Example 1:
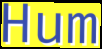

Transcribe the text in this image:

Hum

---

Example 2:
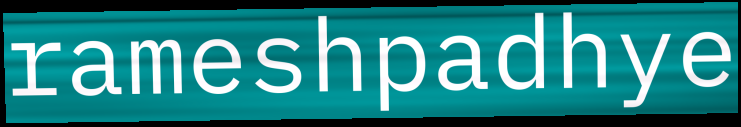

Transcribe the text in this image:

rameshpadhye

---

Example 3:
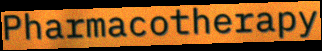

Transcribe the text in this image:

Pharmacotherapy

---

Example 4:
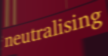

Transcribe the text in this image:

neutralising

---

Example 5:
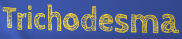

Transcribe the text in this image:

Trichodesma